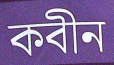
কবীন